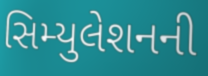
સિમ્યુલેશનની